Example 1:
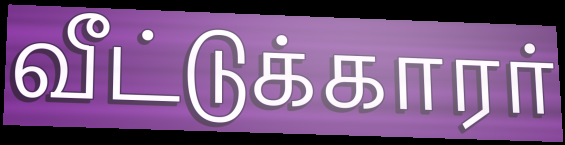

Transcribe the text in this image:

வீட்டுக்காரர்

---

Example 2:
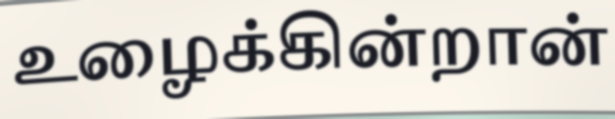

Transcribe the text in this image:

உழைக்கின்றான்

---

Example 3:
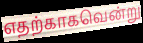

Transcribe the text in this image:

எதற்காகவென்று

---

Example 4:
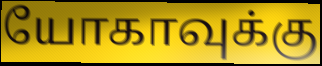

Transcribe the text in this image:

யோகாவுக்கு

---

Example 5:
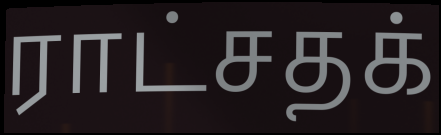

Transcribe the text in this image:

ராட்சதக்